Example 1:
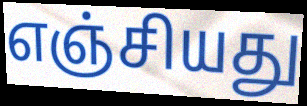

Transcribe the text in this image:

எஞ்சியது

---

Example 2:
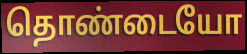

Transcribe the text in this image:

தொண்டையோ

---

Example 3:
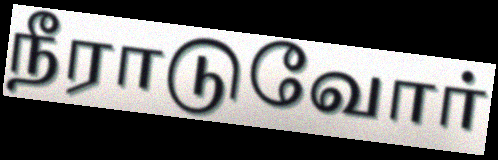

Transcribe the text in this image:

நீராடுவோர்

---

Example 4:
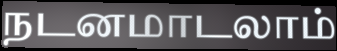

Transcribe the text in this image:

நடனமாடலாம்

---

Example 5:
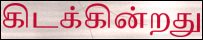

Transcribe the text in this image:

கிடக்கின்றது